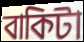
বাকিটা